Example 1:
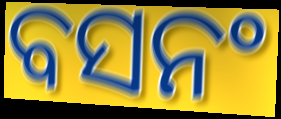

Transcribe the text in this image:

ବସନଂ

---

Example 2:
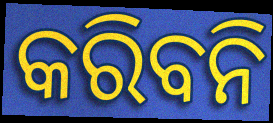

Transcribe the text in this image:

କରିବନି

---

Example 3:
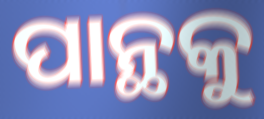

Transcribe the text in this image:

ପାନ୍ଥକୁ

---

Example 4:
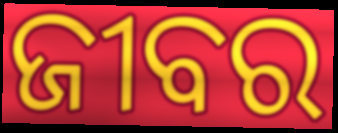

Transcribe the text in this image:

ଜୀବର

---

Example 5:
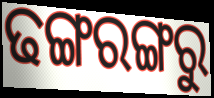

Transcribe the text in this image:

ଢଙ୍ଗରଙ୍ଗରୁ